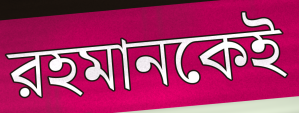
রহমানকেই